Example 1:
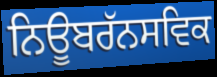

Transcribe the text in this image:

ਨਿਊਬਰੱਨਸਵਿਕ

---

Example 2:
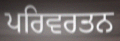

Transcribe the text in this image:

ਪਰਿਵਰਤਨ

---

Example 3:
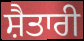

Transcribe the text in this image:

ਸ਼ੈਤਾਰੀ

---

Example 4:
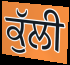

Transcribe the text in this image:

ਕੁੱਲੀ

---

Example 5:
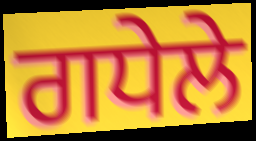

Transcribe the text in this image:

ਗਧੇਲੇ